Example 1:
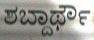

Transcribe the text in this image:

ಶಬ್ದಾರ್ಥೌ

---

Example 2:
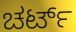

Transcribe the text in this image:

ಚರ್ಟ್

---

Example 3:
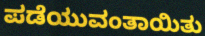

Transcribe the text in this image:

ಪಡೆಯುವಂತಾಯಿತು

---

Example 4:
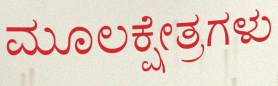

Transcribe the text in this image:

ಮೂಲಕ್ಷೇತ್ರಗಳು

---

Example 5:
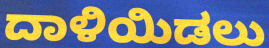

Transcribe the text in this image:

ದಾಳಿಯಿಡಲು